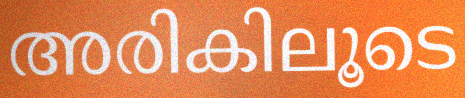
അരികിലൂടെ